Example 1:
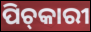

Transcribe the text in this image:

ପିଚ୍‌କାରୀ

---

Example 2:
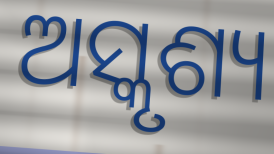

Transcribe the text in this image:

ଅସ୍କୃଶ୍ୟ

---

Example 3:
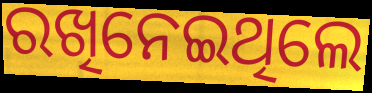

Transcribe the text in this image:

ରଖିନେଇଥିଲେ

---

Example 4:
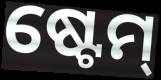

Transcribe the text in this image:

ଷ୍ଟେମ୍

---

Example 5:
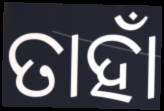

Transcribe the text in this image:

ତାହାଁ